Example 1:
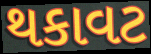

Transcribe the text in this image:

થકાવટ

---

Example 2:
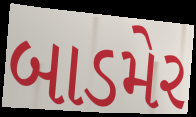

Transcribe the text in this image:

બાડમેર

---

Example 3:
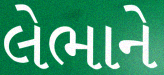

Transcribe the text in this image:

લેભાને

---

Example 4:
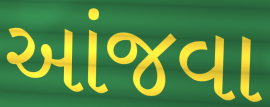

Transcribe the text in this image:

આંજવા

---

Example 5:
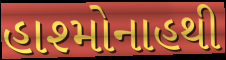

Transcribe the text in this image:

હાશ્મોનાહથી